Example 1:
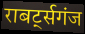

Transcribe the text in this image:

राबर्ट्सगंज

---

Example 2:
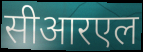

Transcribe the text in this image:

सीआरएल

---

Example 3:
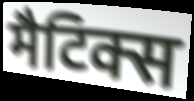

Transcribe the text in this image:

मैटिक्स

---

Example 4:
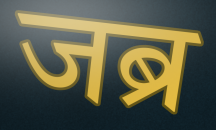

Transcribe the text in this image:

जब्र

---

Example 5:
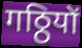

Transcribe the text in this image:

गठ्ठियों